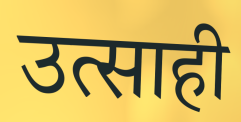
उत्साही